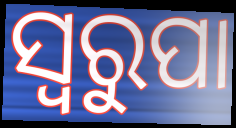
ସ୍ୱରୁପା